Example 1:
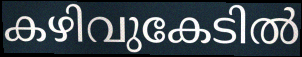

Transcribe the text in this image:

കഴിവുകേടിൽ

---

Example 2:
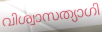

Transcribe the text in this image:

വിശ്വാസത്യാഗി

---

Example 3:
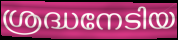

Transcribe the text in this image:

ശ്രദ്ധനേടിയ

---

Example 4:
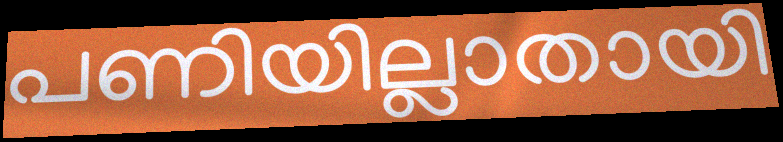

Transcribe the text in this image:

പണിയില്ലാതായി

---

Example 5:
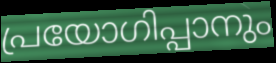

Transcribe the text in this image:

പ്രയോഗിപ്പാനും